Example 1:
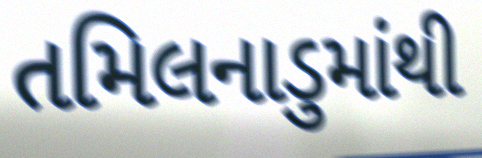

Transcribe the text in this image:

તમિલનાડુમાંથી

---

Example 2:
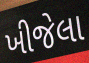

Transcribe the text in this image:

ખીજેલા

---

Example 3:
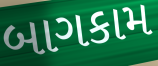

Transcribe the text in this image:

બાગકામ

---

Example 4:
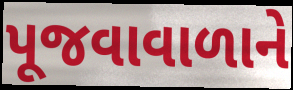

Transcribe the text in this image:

પૂજવાવાળાને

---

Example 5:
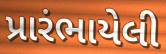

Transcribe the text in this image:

પ્રારંભાયેલી